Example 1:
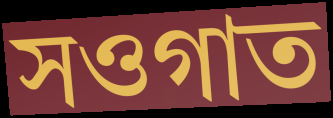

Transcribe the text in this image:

সওগাত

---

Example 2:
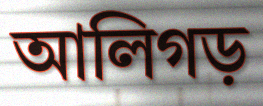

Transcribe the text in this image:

আলিগড়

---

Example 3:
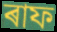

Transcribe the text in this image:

ৰাফ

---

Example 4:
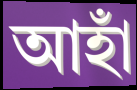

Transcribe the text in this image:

আহাঁ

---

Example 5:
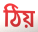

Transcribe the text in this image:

ঠিয়